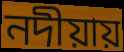
নদীয়ায়